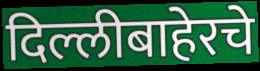
दिल्लीबाहेरचे